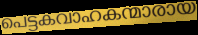
പെട്ടകവാഹകന്മാരായ